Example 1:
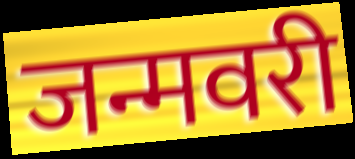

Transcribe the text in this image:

जन्मवरी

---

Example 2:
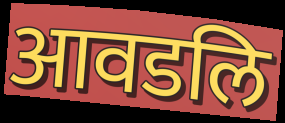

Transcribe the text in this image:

आवडलि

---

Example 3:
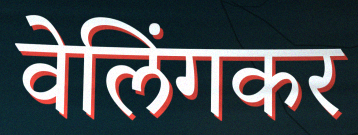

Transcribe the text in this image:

वेलिंगकर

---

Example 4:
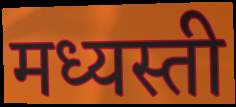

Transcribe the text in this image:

मध्यस्ती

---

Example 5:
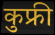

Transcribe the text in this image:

कुफ्री